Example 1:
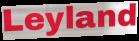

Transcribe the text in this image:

Leyland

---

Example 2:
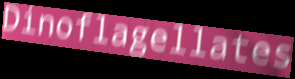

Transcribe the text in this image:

Dinoflagellates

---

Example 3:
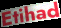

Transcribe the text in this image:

Etihad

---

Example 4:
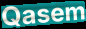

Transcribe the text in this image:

Qasem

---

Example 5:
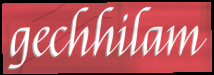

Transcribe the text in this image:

gechhilam